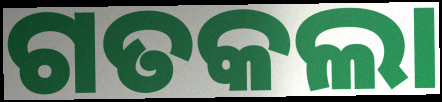
ଗତକଲା